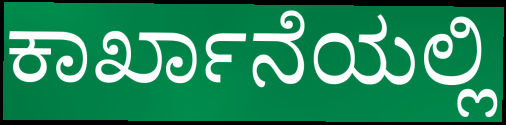
ಕಾರ್ಖಾನೆಯಲ್ಲಿ